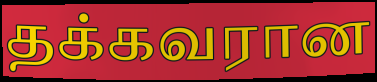
தக்கவரான